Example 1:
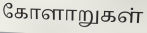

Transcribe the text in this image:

கோளாறுகள்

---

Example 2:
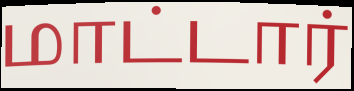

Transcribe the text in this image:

மாட்டார்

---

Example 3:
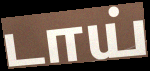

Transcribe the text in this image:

டாய்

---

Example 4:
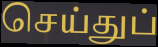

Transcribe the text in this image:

செய்துப்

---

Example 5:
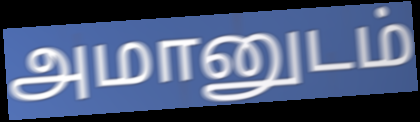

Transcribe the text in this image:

அமானுடம்